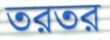
তরতর